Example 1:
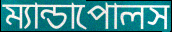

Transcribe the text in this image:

ম্যান্ডাপোলস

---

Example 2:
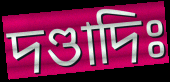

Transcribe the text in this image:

দণ্ডাদিঃ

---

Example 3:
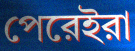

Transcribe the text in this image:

পেরেইরা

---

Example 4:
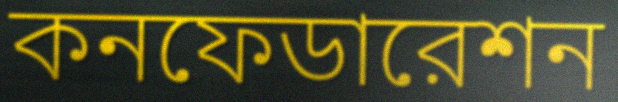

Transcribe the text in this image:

কনফেডারেশন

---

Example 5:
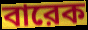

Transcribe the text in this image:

বারেক